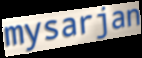
mysarjan